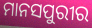
ମାନସପୁରୀର